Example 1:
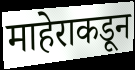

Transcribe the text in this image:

माहेराकडून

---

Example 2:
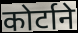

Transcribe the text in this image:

कोर्टाने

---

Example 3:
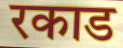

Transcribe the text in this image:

रकाड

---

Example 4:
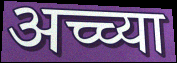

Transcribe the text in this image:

अच्च्या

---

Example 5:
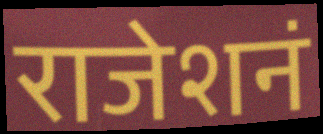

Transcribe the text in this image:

राजेशनं